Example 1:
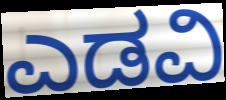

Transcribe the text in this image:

ಎಡವಿ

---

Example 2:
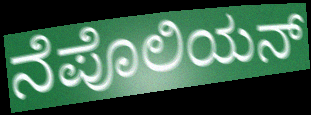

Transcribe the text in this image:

ನೆಪೊಲಿಯನ್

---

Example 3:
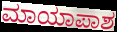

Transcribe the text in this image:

ಮಾಯಾಪಾಶ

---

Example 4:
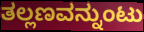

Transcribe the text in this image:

ತಲ್ಲಣವನ್ನುಂಟು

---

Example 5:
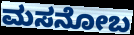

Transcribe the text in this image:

ಮಸನೋಬ